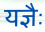
यज्ञैः